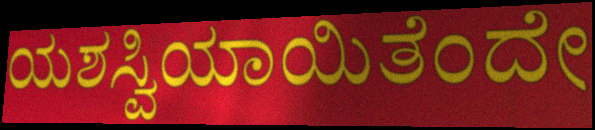
ಯಶಸ್ವಿಯಾಯಿತೆಂದೇ